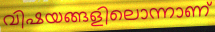
വിഷയങ്ങളിലൊന്നാണ്